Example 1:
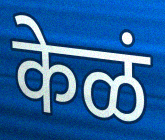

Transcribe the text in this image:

केळं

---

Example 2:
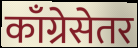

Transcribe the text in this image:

काँग्रेसेतर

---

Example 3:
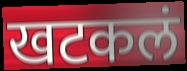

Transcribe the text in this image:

खटकलं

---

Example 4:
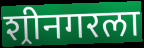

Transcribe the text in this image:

श्रीनगरला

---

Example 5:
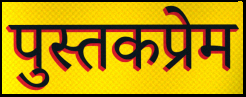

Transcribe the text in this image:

पुस्तकप्रेम